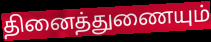
தினைத்துணையும்